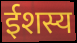
ईशस्य